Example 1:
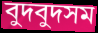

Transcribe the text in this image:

বুদবুদসম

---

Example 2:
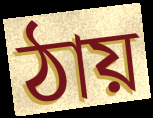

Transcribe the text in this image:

ঠায়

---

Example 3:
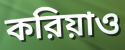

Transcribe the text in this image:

করিয়াও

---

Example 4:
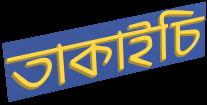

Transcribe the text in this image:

তাকাইচি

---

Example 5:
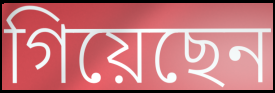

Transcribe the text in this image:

গিয়েছেন